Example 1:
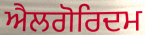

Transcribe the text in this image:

ਐਲਗੋਰਿਦਮ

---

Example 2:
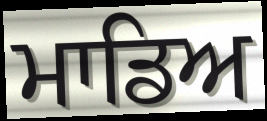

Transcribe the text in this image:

ਮਾਡਿਅ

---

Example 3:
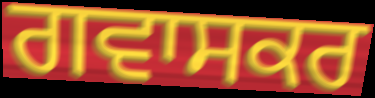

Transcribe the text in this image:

ਗਵਾਸਕਰ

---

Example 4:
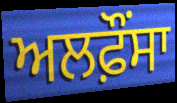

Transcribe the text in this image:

ਅਲਫ਼ੌਂਸਾ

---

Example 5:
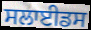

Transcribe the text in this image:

ਸਲਾਈਡਸ